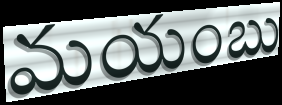
మయంబు